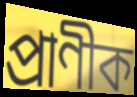
প্ৰাণীক